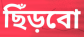
ছিঁড়বো